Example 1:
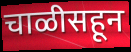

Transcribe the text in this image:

चाळीसहून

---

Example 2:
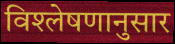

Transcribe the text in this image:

विश्लेषणानुसार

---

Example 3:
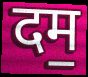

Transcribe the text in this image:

दम॒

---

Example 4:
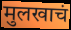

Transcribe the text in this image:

मुलखाचं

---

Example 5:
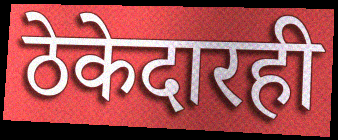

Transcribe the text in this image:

ठेकेदारही